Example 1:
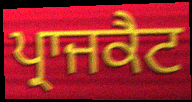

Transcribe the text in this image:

ਪ੍ਰਾਜਕੈਟ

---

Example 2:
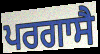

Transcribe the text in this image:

ਪਰਗਾਸੈ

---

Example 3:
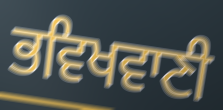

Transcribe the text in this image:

ਭਵਿਖਵਾਣੀ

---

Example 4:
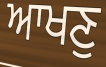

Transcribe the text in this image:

ਆਖਣੁ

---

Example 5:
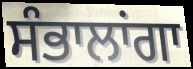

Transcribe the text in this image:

ਸੰਭਾਲਾਂਗਾ